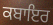
ਕਬਾਇਰ